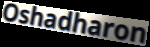
Oshadharon